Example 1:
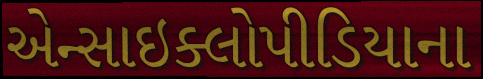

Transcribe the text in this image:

એન્સાઇક્લોપીડિયાના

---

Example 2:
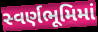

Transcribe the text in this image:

સ્વર્ણભૂમિમાં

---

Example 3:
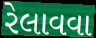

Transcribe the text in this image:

રેલાવવા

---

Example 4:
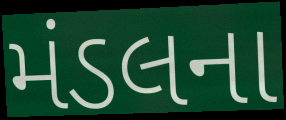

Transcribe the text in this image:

મંડલના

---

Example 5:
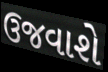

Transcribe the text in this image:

ઉજવાશે